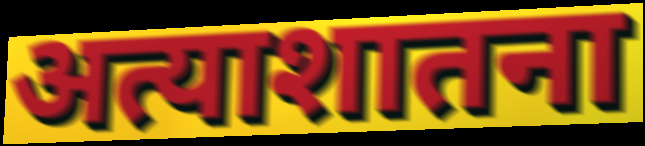
अत्याशातना